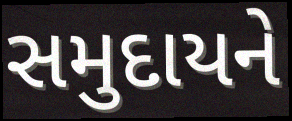
સમુદાયને